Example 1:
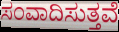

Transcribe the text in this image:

ಸಂವಾದಿಸುತ್ತವೆ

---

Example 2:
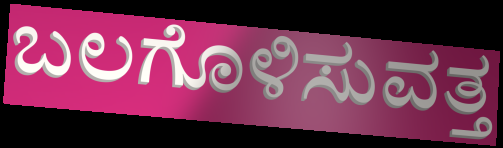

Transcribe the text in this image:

ಬಲಗೊಳಿಸುವತ್ತ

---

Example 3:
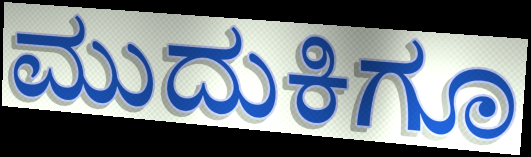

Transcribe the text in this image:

ಮುದುಕಿಗೂ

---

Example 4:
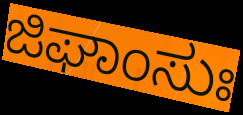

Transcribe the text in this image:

ಜಿಘಾಂಸುಃ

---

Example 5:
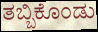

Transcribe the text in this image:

ತಬ್ಬಿಕೊಂಡು